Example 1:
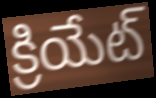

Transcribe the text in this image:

క్రియేట్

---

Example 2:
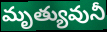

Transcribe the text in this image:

మృత్యువునీ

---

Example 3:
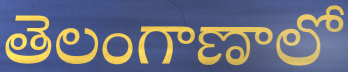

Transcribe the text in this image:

తెలంగాణాలో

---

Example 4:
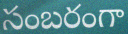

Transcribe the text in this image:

సంబరంగా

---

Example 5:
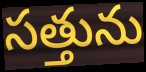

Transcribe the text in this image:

సత్తును